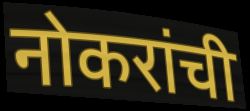
नोकरांची